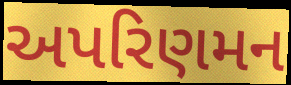
અપરિણમન